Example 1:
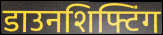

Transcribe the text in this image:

डाउनशिफ्टिंग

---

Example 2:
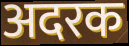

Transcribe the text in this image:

अदरक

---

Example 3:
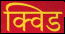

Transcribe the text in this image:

क्विड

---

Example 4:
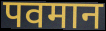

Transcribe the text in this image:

पवमान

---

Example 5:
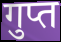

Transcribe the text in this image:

गुप्त